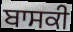
ਬਾਸਕੀ